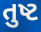
તુષ્ટ